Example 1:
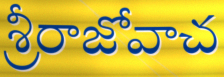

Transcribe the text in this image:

శ్రీరాజోవాచ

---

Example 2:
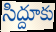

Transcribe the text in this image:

సిద్దూకు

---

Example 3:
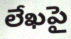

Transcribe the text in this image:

లేఖపై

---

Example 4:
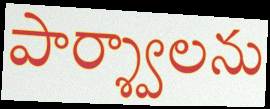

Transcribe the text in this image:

పార్శ్వాలను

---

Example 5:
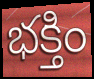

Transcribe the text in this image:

భక్తిం